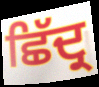
ਛਿੱਦ੍ਰ